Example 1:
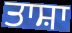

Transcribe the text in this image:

ਤਾਸ਼ਾ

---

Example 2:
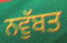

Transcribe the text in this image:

ਨਵੁੱਬਤ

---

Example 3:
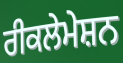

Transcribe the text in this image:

ਰੀਕਲੇਮੇਸ਼ਨ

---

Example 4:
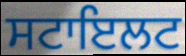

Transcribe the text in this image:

ਸਟਾਇਲਟ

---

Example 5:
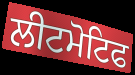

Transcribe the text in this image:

ਲੀਟਮੋਟਿਫ